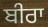
ਬੀਰਾ